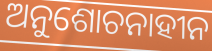
ଅନୁଶୋଚନାହୀନ